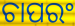
ଚାପରଂ